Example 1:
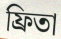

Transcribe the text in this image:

ফ্রিতা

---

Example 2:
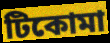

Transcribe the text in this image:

টিকোমা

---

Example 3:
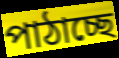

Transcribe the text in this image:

পাঠাচ্ছে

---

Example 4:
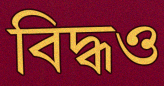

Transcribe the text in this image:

বিদ্ধও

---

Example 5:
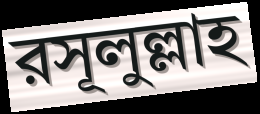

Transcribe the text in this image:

রসূলুল্লাহ